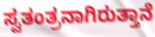
ಸ್ವತಂತ್ರನಾಗಿರುತ್ತಾನೆ